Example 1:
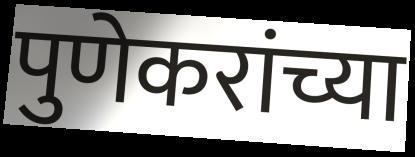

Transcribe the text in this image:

पुणेकरांच्या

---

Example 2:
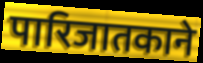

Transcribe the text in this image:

पारिजातकाने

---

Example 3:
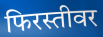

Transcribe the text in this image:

फिरस्तीवर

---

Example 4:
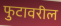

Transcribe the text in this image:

फुटावरील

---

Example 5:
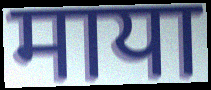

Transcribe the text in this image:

माया